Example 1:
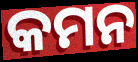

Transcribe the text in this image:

କମନ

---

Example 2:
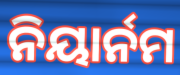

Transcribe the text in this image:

ନିୟାର୍ନମ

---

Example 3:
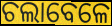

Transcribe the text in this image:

ଚଲାବେଳେ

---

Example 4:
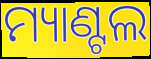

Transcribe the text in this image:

ମ୍ୟାଣ୍ଟଲ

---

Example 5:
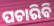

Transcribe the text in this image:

ପଚାରିବି